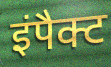
इंपैक्ट